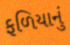
ફળિયાનું